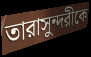
তারাসুন্দরীকে